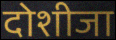
दोशीजा